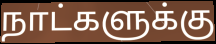
நாட்களுக்கு